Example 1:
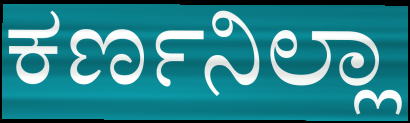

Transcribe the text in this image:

ಕರ್ಣನಿಲ್ಲಾ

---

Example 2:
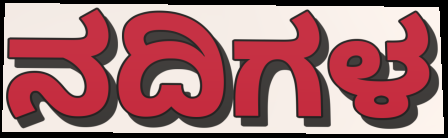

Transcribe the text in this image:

ನದಿಗಳ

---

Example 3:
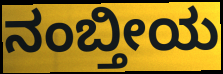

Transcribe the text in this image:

ನಂಬ್ತೀಯ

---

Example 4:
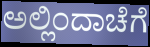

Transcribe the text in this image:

ಅಲ್ಲಿಂದಾಚೆಗೆ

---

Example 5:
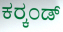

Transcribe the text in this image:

ಕರ್‍ಕಂಡ್